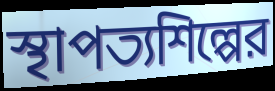
স্থাপত্যশিল্পের